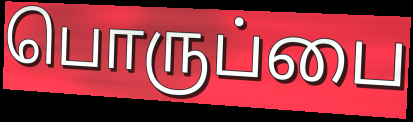
பொருப்பை